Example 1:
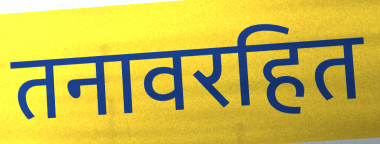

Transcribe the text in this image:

तनावरहित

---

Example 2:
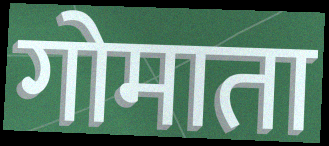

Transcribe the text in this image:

गोमाता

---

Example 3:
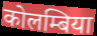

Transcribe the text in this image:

कोलम्बिया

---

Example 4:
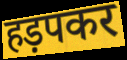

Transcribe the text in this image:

हड़पकर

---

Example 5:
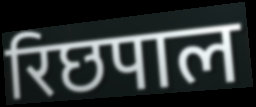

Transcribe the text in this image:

रिछपाल